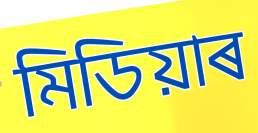
মিডিয়াৰ